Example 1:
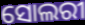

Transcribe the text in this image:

ସୋଲରୀ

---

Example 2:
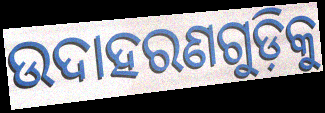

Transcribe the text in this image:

ଉଦାହରଣଗୁଡ଼ିକୁ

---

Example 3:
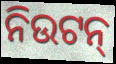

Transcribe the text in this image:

ନିଉଟନ୍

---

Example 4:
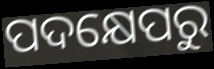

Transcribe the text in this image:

ପଦକ୍ଷେପରୁ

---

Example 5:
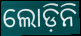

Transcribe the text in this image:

ଲୋଡ଼ିନି